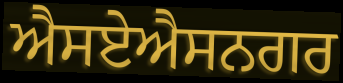
ਐਸਏਐਸਨਗਰ